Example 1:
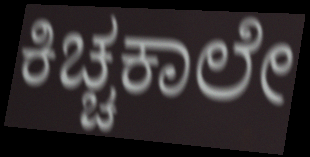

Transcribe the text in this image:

ಕಿಚ್ಚಕಾಲೇ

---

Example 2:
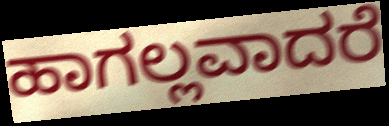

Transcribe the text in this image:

ಹಾಗಲ್ಲವಾದರೆ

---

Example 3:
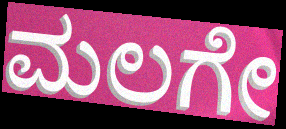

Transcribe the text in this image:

ಮಲಗೇ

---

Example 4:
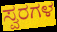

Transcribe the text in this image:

ಸ್ವರಗಳ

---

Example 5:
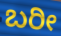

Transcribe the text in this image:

ಬರೀ